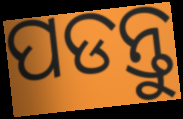
ପଡନ୍ତୁ